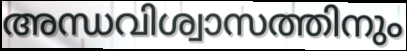
അന്ധവിശ്വാസത്തിനും